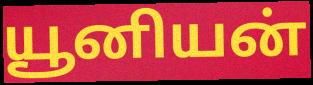
யூனியன்